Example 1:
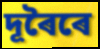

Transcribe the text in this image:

দূৰৈৰে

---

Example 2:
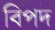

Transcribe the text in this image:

বিপদ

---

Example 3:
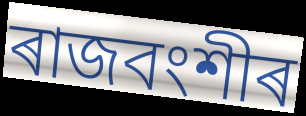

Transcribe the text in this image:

ৰাজবংশীৰ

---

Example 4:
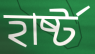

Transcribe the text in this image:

হাৰ্ষ্ট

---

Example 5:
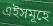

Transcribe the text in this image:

এইসমূহে